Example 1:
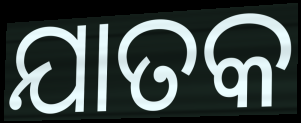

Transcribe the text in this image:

ଯାତକ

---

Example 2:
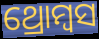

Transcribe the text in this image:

ଥ୍ରୋମ୍ବସ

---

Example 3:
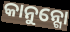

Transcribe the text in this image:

କାନୁନ୍ଗୋ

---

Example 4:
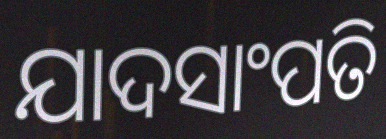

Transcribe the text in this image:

ଯାଦସାଂପତି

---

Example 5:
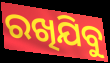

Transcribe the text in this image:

ରଖିଯିବୁ